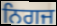
ਨਿਗਜ